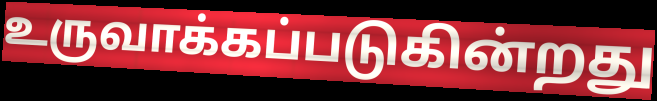
உருவாக்கப்படுகின்றது